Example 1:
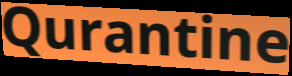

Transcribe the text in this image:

Qurantine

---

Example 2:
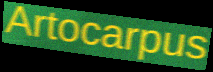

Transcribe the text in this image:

Artocarpus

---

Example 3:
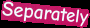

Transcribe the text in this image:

Separately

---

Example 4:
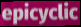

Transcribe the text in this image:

epicyclic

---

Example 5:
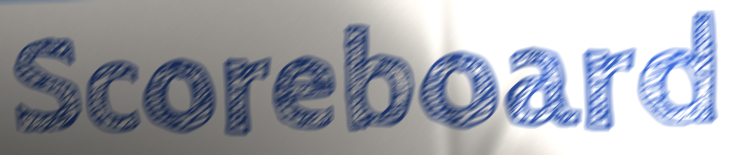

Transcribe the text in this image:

Scoreboard